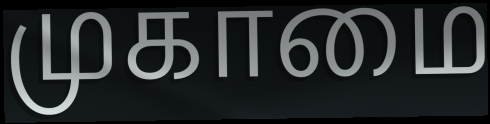
முகாமை